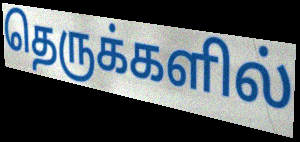
தெருக்களில்